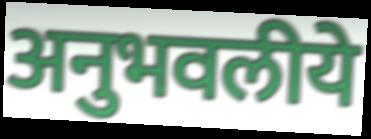
अनुभवलीये